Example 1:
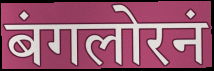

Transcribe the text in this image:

बंगलोरनं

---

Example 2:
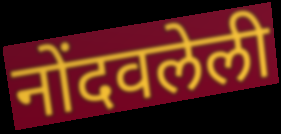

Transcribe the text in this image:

नोंदवलेली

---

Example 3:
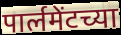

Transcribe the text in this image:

पार्लमेंटच्या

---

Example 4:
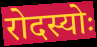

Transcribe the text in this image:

रोदस्योः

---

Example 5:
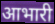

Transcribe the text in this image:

आभारी